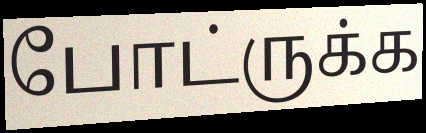
போட்ருக்க